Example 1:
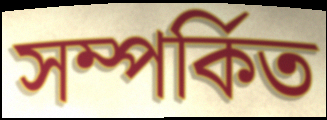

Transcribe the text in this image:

সম্পর্কিত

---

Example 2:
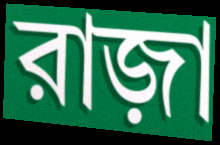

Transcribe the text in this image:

রাজ়া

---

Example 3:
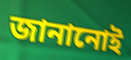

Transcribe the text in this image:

জানানোই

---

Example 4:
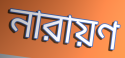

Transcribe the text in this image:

নারায়ণ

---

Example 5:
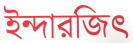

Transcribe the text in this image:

ইন্দারজিৎ